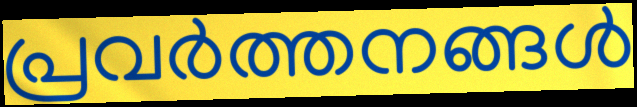
പ്രവർത്തനങ്ങൾ